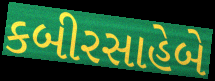
કબીરસાહેબે